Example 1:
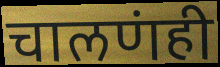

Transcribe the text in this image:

चालणंही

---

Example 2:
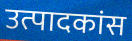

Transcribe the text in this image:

उत्पादकांस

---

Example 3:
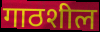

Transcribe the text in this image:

गाठशील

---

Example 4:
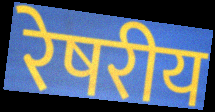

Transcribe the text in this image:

रेषरीय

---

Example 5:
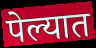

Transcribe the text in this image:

पेल्यात